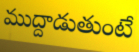
ముద్దాడుతుంటే